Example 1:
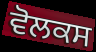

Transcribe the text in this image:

ਵੋਲਕਸ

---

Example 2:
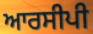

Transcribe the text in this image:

ਆਰਸੀਪੀ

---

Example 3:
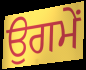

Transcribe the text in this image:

ਉਗਮੇਂ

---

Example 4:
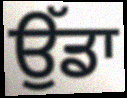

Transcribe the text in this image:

ਉੱਡਾ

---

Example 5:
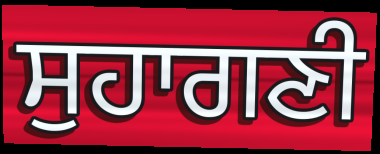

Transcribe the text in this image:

ਸੁਹਾਗਣੀ